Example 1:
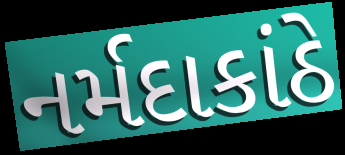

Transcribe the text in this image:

નર્મદાકાંઠે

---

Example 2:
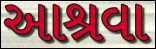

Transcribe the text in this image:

આશ્રવા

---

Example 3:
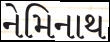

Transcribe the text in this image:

નેમિનાથ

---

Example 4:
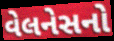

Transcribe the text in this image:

વેલનેસનો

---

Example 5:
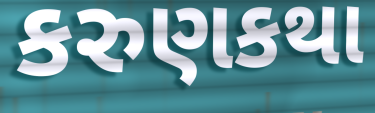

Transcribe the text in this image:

કરુણકથા